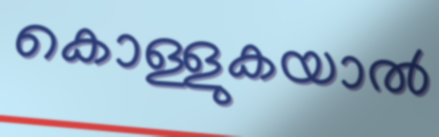
കൊള്ളുകയാൽ